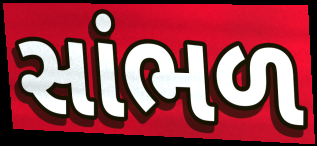
સાંભળ